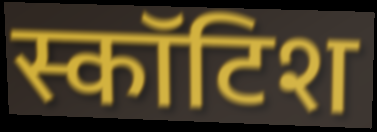
स्कॉटिश